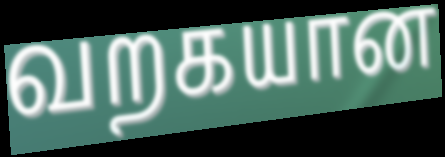
வறகயான